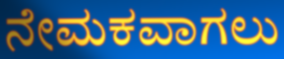
ನೇಮಕವಾಗಲು